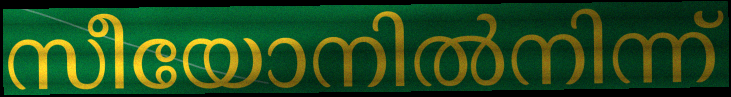
സീയോനിൽനിന്ന്